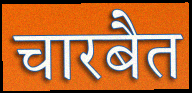
चारबैत